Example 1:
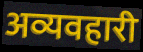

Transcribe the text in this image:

अव्यवहारी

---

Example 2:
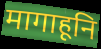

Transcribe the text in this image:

मागाहूनि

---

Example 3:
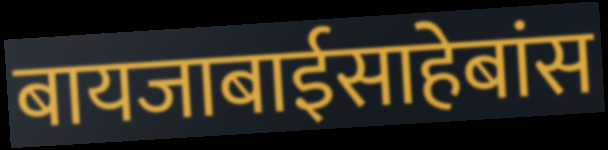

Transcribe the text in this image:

बायजाबाईसाहेबांस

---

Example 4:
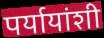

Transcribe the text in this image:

पर्यायांशी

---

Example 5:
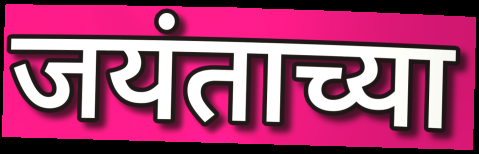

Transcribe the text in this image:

जयंताच्या